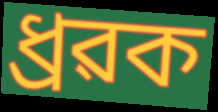
ধ্ৰৱক